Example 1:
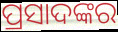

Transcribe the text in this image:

ପ୍ରସାଦଙ୍କର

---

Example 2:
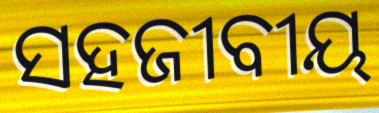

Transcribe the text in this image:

ସହଜୀବୀୟ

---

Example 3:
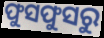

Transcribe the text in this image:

ଫୁସଫୁସରୁ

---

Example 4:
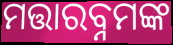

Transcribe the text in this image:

ମତ୍ତାରବ୍ନମଙ୍କ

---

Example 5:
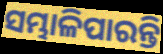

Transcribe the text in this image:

ସମ୍ଭାଳିପାରନ୍ତି